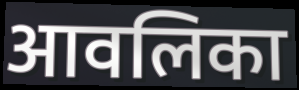
आवलिका